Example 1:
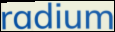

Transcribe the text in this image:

radium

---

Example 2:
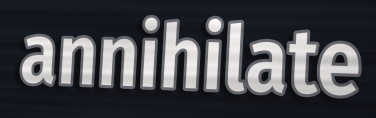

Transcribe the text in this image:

annihilate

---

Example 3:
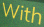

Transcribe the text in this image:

With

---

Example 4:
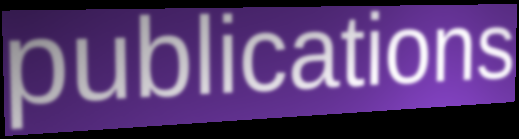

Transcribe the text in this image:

publications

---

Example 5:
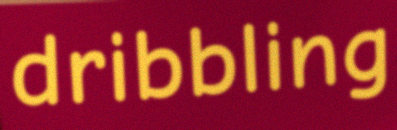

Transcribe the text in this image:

dribbling